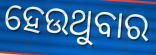
ହେଉଥୁବାର